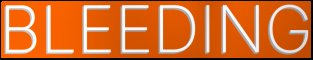
BLEEDING